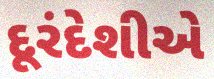
દૂરંદેશીએ